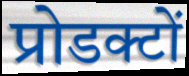
प्रोडक्टों